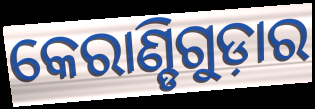
କେରାଣ୍ଡିଗୁଡ଼ାର